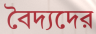
বৈদ্যদের